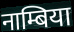
नाम्बिया